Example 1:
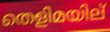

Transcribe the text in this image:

തെളിമയില്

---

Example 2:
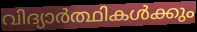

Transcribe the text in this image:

വിദ്യാർത്ഥികൾക്കും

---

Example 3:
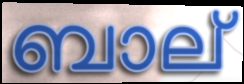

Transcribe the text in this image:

ബാല്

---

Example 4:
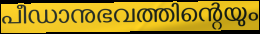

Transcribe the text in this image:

പീഡാനുഭവത്തിന്റെയും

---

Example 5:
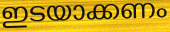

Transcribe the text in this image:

ഇടയാക്കണം